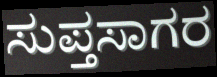
ಸುಪ್ತಸಾಗರ